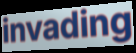
invading